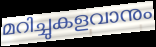
മറിച്ചുകളവാനും